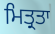
ਮਿਤ੍ਰਤਾ